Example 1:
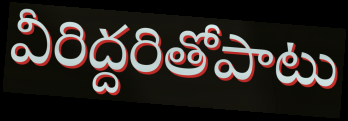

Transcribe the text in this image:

వీరిద్దరితోపాటు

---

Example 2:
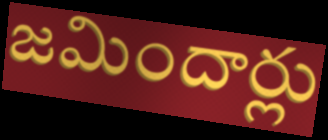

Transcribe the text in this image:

జమిందార్లు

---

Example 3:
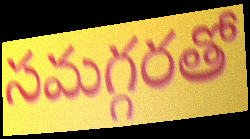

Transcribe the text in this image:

సమగ్గరతో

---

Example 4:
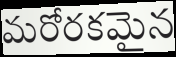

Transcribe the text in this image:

మరోరకమైన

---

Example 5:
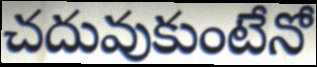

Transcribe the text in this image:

చదువుకుంటేనో